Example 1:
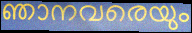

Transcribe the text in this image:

ഞാനവരെയും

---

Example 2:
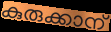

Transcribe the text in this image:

കുരുക്കാന്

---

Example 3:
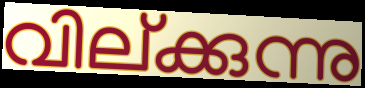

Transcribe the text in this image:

വില്ക്കുന്നു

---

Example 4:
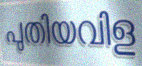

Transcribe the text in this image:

പുതിയവിള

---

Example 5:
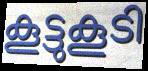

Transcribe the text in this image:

കൂട്ടുകൂടി